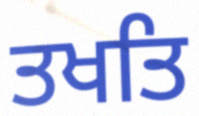
ਤਖਤਿ